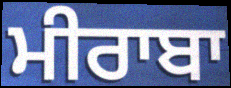
ਮੀਰਾਬਾ